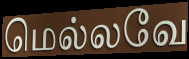
மெல்லவே